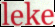
leke